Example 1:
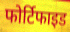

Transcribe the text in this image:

फोर्टिफाइड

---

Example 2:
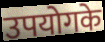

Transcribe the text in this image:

उपयोगके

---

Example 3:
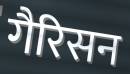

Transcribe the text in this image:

गैरिसन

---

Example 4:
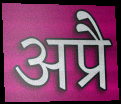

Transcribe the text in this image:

अप्रै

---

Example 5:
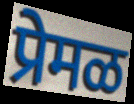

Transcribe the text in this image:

प्रेमळ